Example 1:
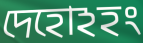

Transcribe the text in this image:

দেহোঽহং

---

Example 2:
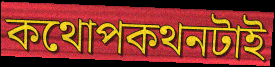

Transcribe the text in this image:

কথোপকথনটাই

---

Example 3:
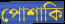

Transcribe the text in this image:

পোশাকি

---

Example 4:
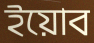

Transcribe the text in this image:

ইয়োব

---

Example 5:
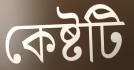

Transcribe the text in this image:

কেষ্টটি